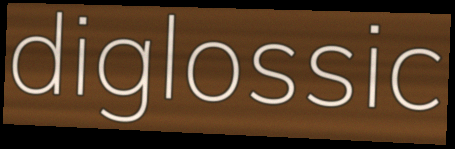
diglossic